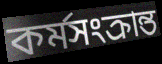
কর্মসংক্রান্ত